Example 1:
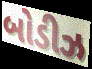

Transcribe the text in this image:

બોડીઝ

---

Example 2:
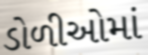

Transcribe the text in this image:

ડોળીઓમાં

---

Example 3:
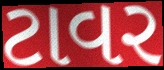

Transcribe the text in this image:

ટાવર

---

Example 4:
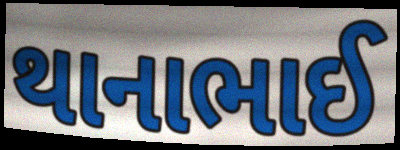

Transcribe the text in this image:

થાનાભાઈ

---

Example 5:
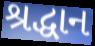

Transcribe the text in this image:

શ્રદ્ધાન